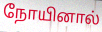
நோயினால்